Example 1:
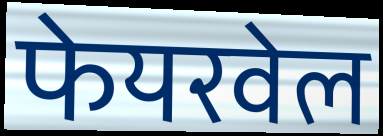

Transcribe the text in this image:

फेयरवेल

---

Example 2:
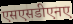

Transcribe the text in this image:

एसएसडीएनए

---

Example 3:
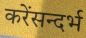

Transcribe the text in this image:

करेंसन्दर्भ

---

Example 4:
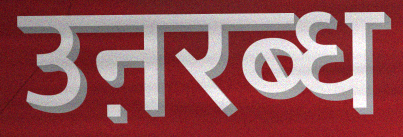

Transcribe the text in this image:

उऩरब्ध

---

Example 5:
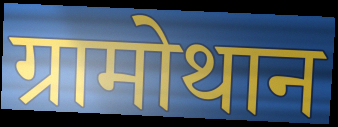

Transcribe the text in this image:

ग्रामोथान